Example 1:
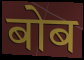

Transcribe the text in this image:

बोब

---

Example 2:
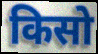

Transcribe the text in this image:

किसो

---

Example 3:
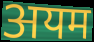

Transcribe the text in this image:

अयम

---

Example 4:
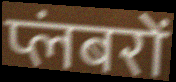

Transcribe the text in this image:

प्लंबरों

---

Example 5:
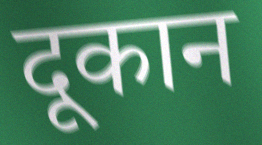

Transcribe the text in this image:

दूकान